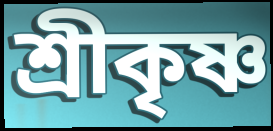
শ্রীকৃষ্ণ